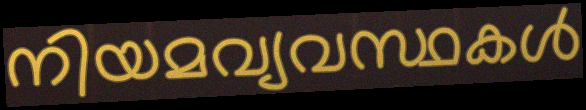
നിയമവ്യവസ്ഥകൾ